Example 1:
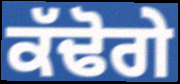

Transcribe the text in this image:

ਕੱਢੋਗੇ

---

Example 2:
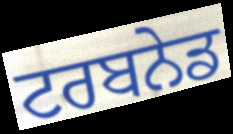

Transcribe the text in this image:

ਟਰਬਨੇਡ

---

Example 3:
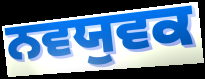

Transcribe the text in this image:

ਨਵਯੁਵਕ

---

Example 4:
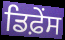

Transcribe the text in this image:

ਡਿਫ਼ੇਂਸ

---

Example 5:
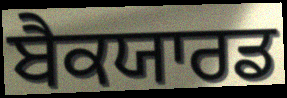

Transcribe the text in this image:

ਬੈਕਯਾਰਡ